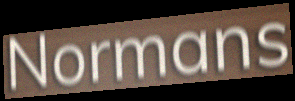
Normans